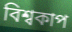
বিশ্বকাপ